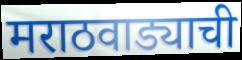
मराठवाड्याची